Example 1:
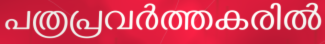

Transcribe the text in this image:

പത്രപ്രവർത്തകരിൽ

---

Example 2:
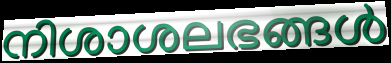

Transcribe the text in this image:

നിശാശലഭങ്ങൾ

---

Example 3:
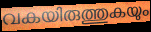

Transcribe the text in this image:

വകയിരുത്തുകയും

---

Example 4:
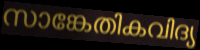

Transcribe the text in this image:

സാങ്കേതികവിദ്യ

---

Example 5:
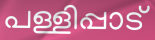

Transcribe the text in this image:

പള്ളിപ്പാട്